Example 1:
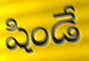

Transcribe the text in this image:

షిండే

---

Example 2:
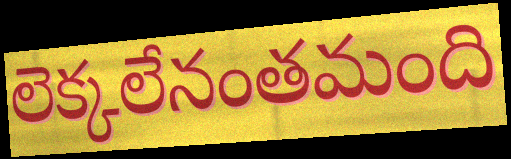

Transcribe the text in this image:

లెక్కలేనంతమంది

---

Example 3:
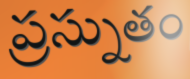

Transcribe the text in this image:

ప్రస్నుతం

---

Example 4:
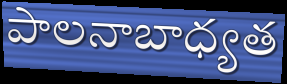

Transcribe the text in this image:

పాలనాబాధ్యత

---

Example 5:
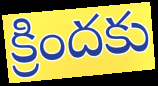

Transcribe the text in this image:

క్రిందకు